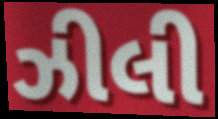
ઝીલી